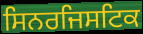
ਸਿਨਰਜਿਸਟਿਕ